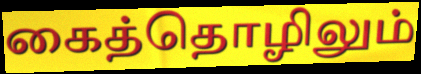
கைத்தொழிலும்